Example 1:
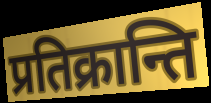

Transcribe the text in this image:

प्रतिक्रान्ति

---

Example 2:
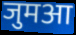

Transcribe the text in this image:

जुमआ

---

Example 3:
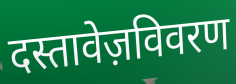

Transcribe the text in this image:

दस्तावेज़विवरण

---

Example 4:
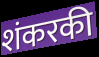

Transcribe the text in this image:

शंकरकी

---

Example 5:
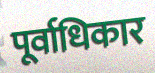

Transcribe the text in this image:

पूर्वाधिकार